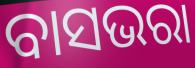
ବାସଭରା